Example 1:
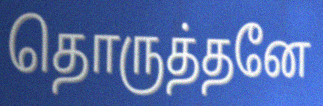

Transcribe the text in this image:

தொருத்தனே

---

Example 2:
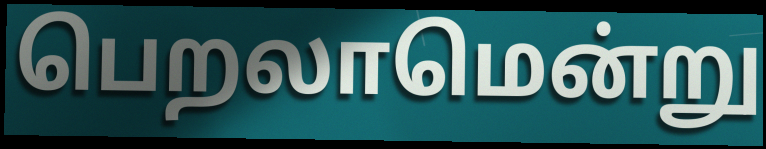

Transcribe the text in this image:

பெறலாமென்று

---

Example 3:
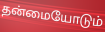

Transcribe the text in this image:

தன்மையோடும்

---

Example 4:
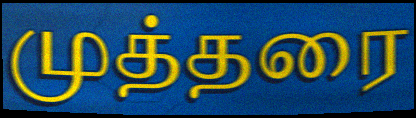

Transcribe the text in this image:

முத்தரை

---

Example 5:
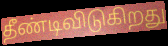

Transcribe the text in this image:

தீண்டிவிடுகிறது